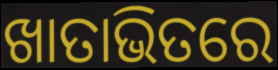
ଖାତାଭିତରେ